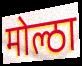
मोल्ठा